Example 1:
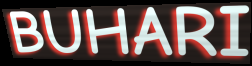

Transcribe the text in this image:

BUHARI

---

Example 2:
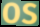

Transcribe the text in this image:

os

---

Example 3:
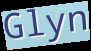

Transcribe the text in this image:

Glyn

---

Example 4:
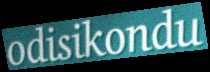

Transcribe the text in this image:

odisikondu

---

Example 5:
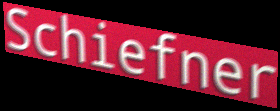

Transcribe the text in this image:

Schiefner